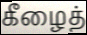
கீழைத்